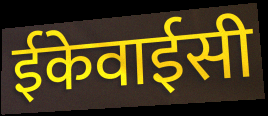
ईकेवाईसी